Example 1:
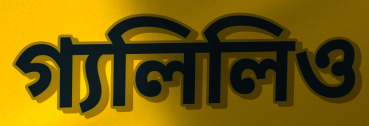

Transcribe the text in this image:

গ্যলিলিও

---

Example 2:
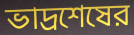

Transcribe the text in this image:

ভাদ্রশেষের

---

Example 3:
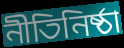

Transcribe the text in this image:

নীতিনিষ্ঠা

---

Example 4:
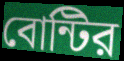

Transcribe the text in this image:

বোন্টির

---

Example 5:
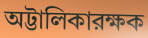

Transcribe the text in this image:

অট্টালিকারক্ষক